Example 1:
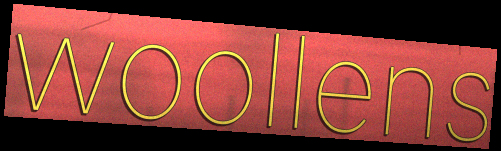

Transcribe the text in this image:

woollens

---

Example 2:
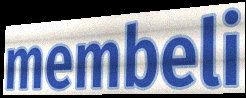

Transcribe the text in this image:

membeli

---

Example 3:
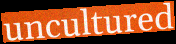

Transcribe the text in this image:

uncultured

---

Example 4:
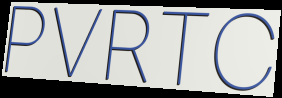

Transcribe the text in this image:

PVRTC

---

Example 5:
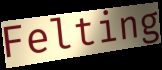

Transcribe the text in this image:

Felting